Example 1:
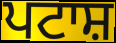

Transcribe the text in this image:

ਪਟਾਸ਼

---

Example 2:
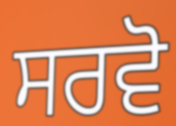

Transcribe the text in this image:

ਸਰਵੋ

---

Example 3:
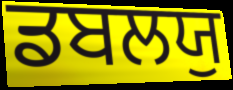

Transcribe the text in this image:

ਡਬਲਯੁ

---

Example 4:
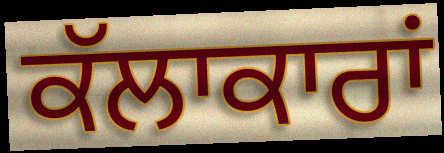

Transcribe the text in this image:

ਕੱਲਾਕਾਰਾਂ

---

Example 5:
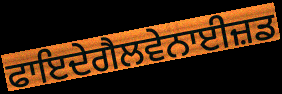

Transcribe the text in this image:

ਫਾਇਦੇਗੈਲਵੇਨਾਈਜ਼ਡ